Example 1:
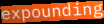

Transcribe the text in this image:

expounding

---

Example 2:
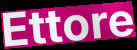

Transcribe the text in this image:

Ettore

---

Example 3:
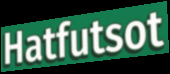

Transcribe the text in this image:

Hatfutsot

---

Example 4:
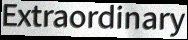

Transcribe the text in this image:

Extraordinary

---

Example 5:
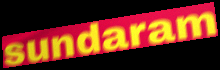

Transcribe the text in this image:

sundaram